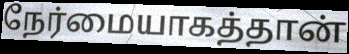
நேர்மையாகத்தான்